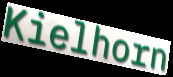
Kielhorn